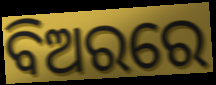
ବିଅରରେ